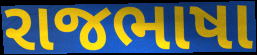
રાજભાષા